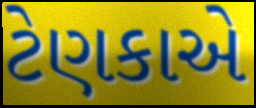
ટેણકાએ